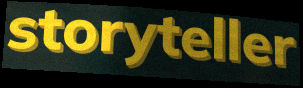
storyteller